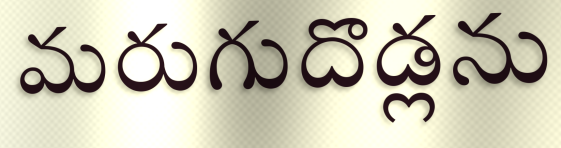
మరుగుదొడ్లను